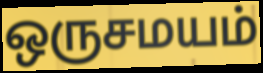
ஒருசமயம்